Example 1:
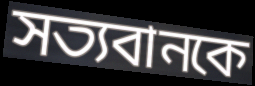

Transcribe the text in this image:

সত্যবানকে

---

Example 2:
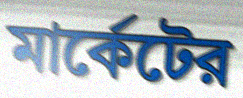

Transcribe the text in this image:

মার্কেটের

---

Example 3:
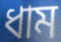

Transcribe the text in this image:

ধাম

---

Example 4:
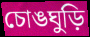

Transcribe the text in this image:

চোঙঘুড়ি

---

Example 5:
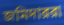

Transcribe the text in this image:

জমিদাররা